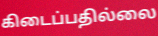
கிடைப்பதில்லை